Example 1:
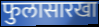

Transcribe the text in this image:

फुलासारखा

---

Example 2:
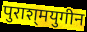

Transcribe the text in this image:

पुराश्मयुगीन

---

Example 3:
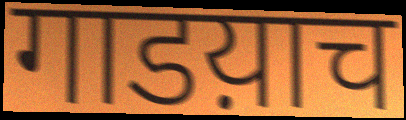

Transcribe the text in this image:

गाडय़ाच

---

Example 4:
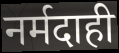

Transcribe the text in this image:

नर्मदाही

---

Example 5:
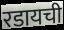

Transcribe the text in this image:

रडायची